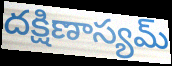
దక్షిణాస్యమ్